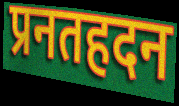
प्रनतहदन